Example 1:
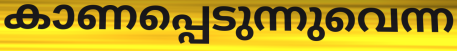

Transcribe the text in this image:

കാണപ്പെടുന്നുവെന്ന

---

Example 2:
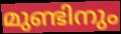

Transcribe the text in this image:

മുണ്ടിനും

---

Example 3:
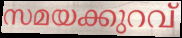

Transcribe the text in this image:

സമയക്കുറവ്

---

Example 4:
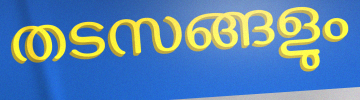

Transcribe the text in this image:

തടസങ്ങളും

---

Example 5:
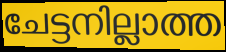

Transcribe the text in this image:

ചേട്ടനില്ലാത്ത